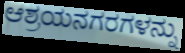
ಆಶ್ರಯನಗರಗಳನ್ನು